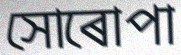
সোৰোপা